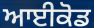
ਆਈਕੋਡ